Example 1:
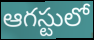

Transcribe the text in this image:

ఆగస్టులో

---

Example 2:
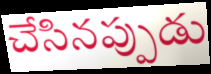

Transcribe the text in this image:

చేసినప్పుడు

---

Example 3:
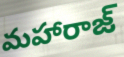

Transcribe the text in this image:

మహారాజ్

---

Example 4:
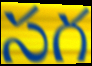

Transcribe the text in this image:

సగ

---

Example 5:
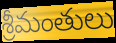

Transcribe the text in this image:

శ్రీమంతులు